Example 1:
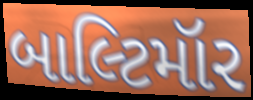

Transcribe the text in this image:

બાલ્ટિમૉર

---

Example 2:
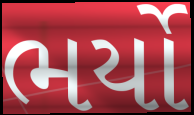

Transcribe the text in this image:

ભર્યો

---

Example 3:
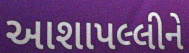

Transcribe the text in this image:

આશાપલ્લીને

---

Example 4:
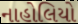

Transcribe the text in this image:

નાહોલિયો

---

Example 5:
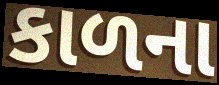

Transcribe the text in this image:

કાળના